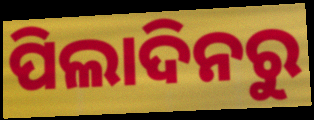
ପିଲାଦିନରୁ